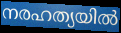
നരഹത്യയിൽ